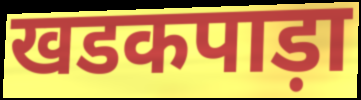
खडकपाड़ा